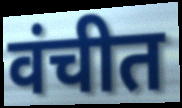
वंचीत